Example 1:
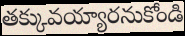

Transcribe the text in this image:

తక్కువయ్యారనుకోండి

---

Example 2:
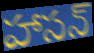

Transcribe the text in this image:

హాసన్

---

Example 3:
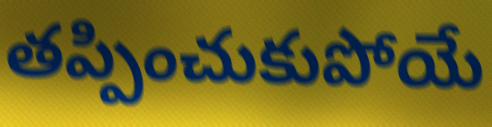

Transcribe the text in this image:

తప్పించుకుపోయే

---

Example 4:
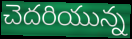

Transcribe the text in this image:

చెదరియున్న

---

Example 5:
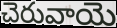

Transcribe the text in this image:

చెరువాయె